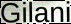
Gilani